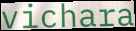
vichara